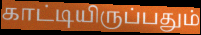
காட்டியிருப்பதும்